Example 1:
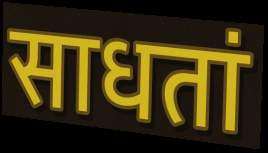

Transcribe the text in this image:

साधतां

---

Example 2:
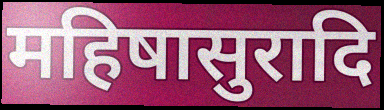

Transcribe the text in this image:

महिषासुरादि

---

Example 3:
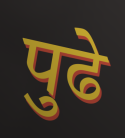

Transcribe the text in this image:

पुढे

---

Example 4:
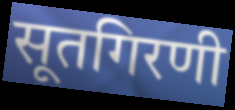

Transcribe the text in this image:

सूतगिरणी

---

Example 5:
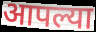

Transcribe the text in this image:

आपल्या